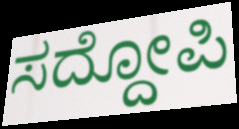
ಸದ್ದೋಪಿ